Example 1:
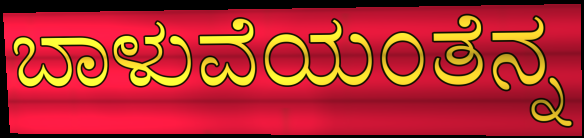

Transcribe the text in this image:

ಬಾಳುವೆಯಂತೆನ್ನ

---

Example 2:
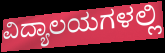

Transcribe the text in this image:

ವಿದ್ಯಾಲಯಗಳಲ್ಲಿ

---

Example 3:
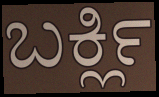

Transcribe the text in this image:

ಬರ್ಕ್ಲಿ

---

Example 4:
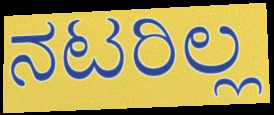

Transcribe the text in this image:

ನಟರಿಲ್ಲ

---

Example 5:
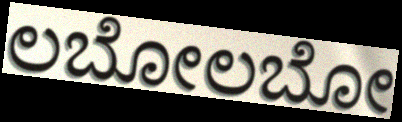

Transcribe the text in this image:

ಲಬೋಲಬೋ